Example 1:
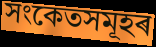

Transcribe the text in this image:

সংকেতসমূহৰ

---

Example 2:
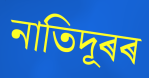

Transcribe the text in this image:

নাতিদূৰৰ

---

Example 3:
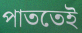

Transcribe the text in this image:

পাততেই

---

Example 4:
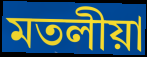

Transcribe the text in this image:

মতলীয়া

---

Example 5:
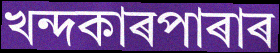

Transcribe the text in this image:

খন্দকাৰপাৰাৰ